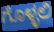
ಗೊಳ್ಳಲಿ